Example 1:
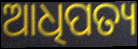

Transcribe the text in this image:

ଆଧିପତ୍ୟ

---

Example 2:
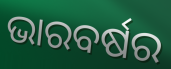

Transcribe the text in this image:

ଭାରବର୍ଷର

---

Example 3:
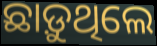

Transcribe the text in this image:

ଛାଡ଼ୁଥିଲେ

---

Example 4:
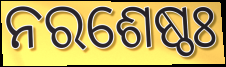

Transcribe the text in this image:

ନରଶେଷ୍ଠଃ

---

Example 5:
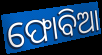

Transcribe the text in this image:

ଫୋବିଆ